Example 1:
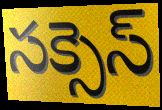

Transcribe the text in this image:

సక్సెస్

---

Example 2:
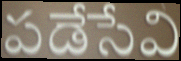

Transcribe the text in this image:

పడేసేవి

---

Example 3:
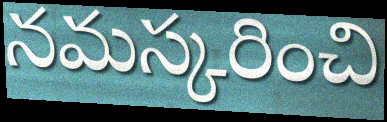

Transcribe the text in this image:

నమస్కరించి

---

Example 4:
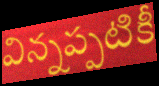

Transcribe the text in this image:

విన్నప్పటికీ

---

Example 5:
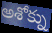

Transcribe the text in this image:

అశోక్ను